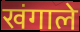
खंगाले